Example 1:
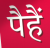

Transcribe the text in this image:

पैहैं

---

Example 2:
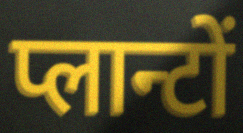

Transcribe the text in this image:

प्लान्टों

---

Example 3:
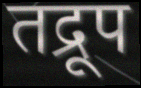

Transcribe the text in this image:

तद्रूप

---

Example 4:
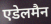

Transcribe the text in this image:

एडेलमैन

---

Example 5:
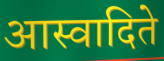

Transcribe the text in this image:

आस्वादिते